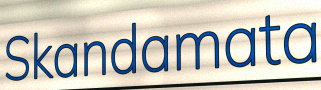
Skandamata